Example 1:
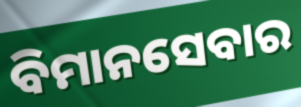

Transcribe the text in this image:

ବିମାନସେବାର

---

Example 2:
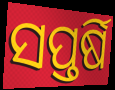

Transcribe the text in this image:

ସପ୍ତର୍ଷି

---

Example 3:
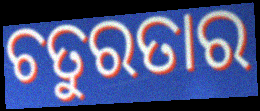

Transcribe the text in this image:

ଚତୁରତାର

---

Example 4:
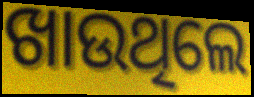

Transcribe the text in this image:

ଖାଉଥିଲେ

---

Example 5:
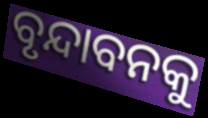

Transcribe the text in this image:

ବୃନ୍ଦାବନକୁ